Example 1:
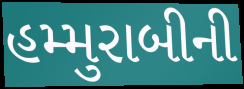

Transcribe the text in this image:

હમ્મુરાબીની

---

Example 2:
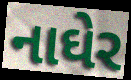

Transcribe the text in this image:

નાઘેર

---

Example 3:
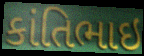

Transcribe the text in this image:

કાંતિભાઇ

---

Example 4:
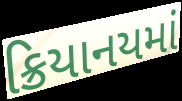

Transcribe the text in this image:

ક્રિયાનયમાં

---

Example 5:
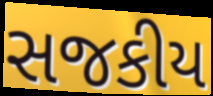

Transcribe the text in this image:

સજકીય